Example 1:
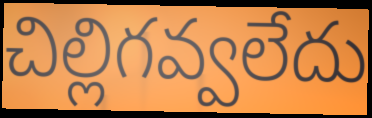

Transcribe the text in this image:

చిల్లిగవ్వలేదు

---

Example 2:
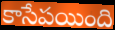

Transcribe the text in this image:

కాసేపయింది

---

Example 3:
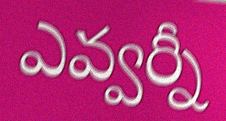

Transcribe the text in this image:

ఎవ్వర్నీ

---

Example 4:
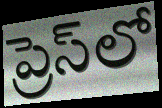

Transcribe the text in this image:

ప్రెస్‌లో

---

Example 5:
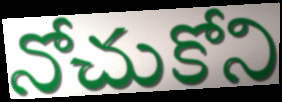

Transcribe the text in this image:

నోచుకోని